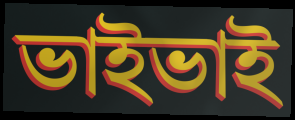
ভাইভাই